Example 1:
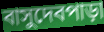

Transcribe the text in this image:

বাসুদেবপাড়া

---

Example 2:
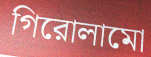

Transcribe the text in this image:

গিরোলামো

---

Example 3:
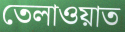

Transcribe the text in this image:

তেলাওয়াত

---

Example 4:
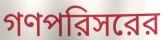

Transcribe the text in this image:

গণপরিসরের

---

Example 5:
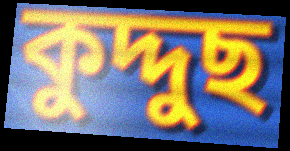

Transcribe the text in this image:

কুদ্দুছ